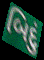
બિદું